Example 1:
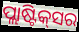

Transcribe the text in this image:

ପ୍ଲାଷ୍ଟିକ୍‌ସର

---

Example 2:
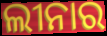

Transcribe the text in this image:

ଲୀନାର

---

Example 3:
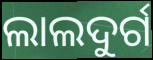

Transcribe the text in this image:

ଲାଲଦୁର୍ଗ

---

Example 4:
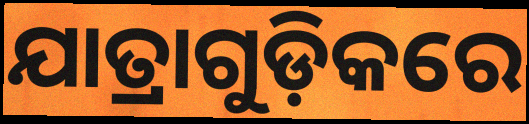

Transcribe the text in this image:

ଯାତ୍ରାଗୁଡ଼ିକରେ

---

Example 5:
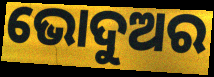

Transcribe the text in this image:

ଭୋଦୁଅର